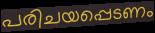
പരിചയപ്പെടണം